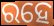
ରହେ